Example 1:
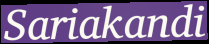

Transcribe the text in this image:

Sariakandi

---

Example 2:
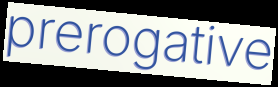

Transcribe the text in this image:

prerogative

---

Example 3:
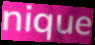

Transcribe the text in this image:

nique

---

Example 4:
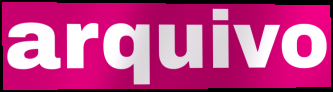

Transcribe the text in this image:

arquivo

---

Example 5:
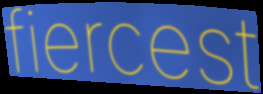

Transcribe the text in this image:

fiercest